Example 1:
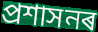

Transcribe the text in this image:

প্ৰশাসনৰ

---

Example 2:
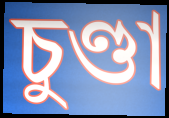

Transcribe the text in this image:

চুণ্ডা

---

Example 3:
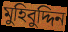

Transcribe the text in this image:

মুহিবুদ্দিন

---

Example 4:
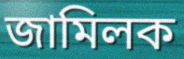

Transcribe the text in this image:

জামিলক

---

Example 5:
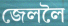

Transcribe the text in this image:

জেললৈ